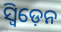
ସ୍ବିଡ଼େନ